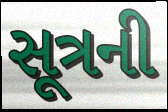
સૂત્રની